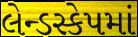
લેન્ડસ્કેપમાં